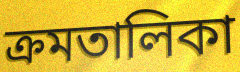
ক্রমতালিকা